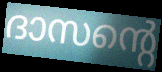
ദാസന്റെ